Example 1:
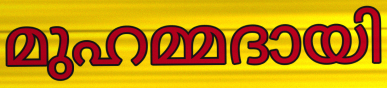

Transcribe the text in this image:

മുഹമ്മദായി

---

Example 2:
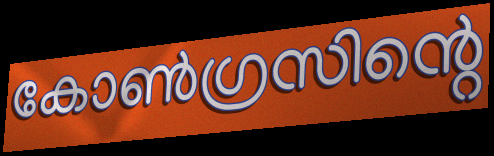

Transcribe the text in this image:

കോൺഗ്രസിന്റെ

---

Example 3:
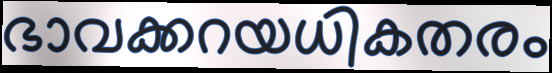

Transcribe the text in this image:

ഭാവക്കറയധികതരം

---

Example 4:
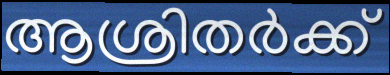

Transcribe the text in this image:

ആശ്രിതർക്ക്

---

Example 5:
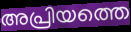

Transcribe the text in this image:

അപ്രിയത്തെ